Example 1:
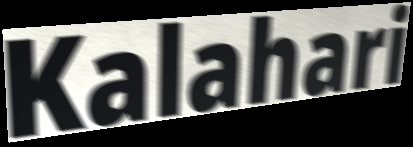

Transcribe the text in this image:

Kalahari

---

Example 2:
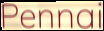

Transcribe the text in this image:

Pennai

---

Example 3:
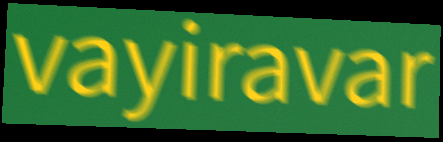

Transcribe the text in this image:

vayiravar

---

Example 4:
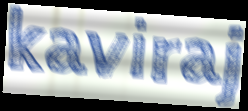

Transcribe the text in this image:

kaviraj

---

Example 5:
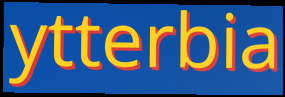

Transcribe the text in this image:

ytterbia